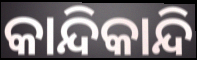
କାନ୍ଦିକାନ୍ଦି